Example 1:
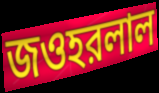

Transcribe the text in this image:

জওহরলাল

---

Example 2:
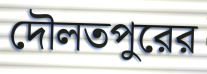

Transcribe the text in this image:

দৌলতপুরের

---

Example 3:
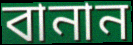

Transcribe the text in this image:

বানান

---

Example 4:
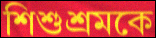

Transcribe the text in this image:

শিশুশ্রমকে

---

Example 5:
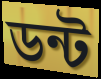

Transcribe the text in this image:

ডন্ট